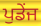
ਪੁਡੇਂਜ